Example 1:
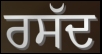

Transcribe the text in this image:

ਰਸੱਦ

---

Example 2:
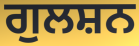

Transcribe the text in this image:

ਗੁਲਸ਼ਨ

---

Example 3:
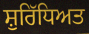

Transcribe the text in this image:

ਸ਼ੁਰਿੱਧਿਅਤ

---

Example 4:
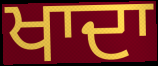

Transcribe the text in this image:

ਖਾਦਾ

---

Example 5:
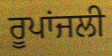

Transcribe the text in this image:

ਰੂਪਾਂਜਲੀ